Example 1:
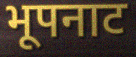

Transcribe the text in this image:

भूपनाट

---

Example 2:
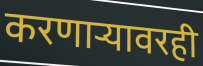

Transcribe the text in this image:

करणाऱ्यावरही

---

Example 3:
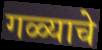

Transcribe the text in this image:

गळ्याचे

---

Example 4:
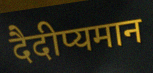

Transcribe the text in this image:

दैदीप्यमान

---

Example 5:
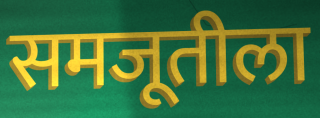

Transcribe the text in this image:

समजूतीला